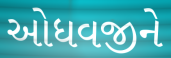
ઓધવજીને